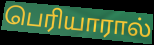
பெரியாரால்